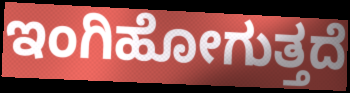
ಇಂಗಿಹೋಗುತ್ತದೆ